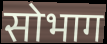
सोभाग